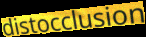
distocclusion